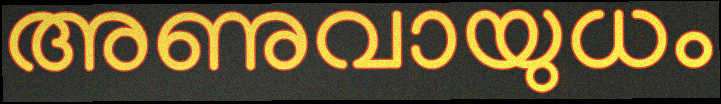
അണുവായുധം